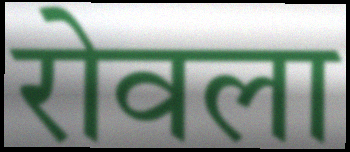
रोवला